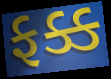
ફક્ક